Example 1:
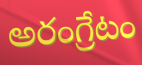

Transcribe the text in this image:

అరంగ్రేటం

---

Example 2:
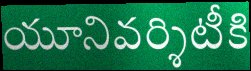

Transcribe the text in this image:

యూనివర్శిటీకి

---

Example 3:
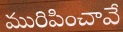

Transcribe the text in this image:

మురిపించావే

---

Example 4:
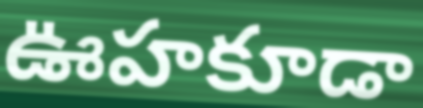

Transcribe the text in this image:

ఊహకూడా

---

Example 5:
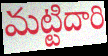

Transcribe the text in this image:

మట్టిదారి